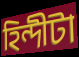
হিন্দীটা